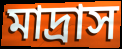
মাদ্রাস